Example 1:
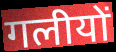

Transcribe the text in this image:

गलीयों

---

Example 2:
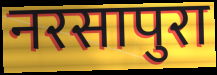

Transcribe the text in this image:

नरसापुरा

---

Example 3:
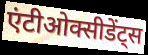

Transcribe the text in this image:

एंटीओक्सीडेंट्स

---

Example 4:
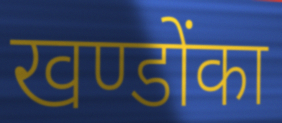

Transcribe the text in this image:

खण्डोंका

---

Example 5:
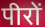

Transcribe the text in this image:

पीरों